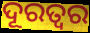
ଦୂରତ୍ଵର